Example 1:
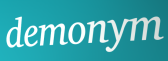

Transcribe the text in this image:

demonym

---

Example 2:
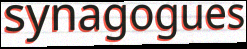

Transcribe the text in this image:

synagogues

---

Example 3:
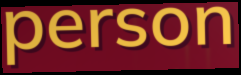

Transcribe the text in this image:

person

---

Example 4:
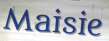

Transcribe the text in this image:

Maisie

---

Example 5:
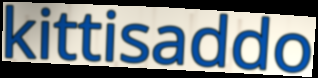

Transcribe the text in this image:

kittisaddo